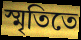
স্মৃতিতে